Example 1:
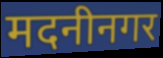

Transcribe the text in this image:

मदनीनगर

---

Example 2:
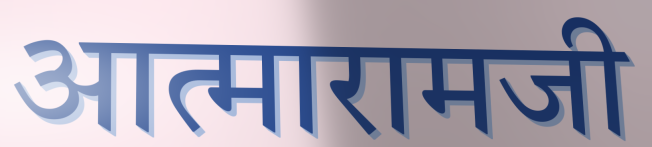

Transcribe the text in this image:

आत्मारामजी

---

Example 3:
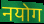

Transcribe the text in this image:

नयोग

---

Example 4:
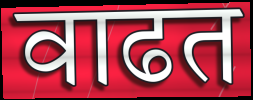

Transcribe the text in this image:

वाढत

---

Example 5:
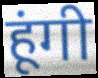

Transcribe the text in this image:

हूंगी